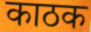
काठक